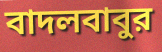
বাদলবাবুর